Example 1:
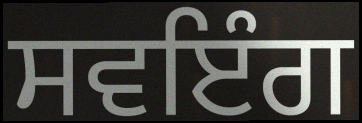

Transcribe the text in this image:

ਸਵਇੰਗ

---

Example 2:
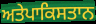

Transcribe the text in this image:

ਅਤੇਪਾਕਿਸਤਾਨ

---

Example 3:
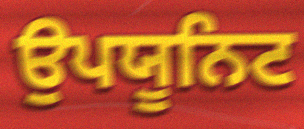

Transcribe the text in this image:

ਉਪਯੂਨਿਟ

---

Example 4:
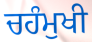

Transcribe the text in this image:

ਚਹੰਮੁਖੀ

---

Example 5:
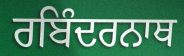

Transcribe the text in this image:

ਰਬਿੰਦਰਨਾਥ